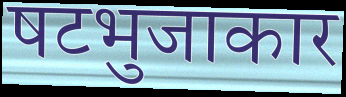
षटभुजाकार